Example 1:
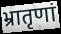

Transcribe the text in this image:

भ्रातृणां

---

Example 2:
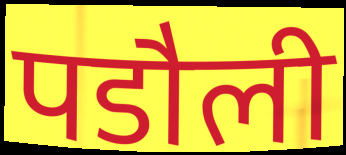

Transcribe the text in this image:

पडौली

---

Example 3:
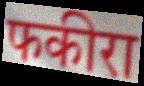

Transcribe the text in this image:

फकीरा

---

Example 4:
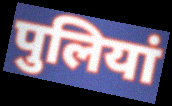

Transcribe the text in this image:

पुलियां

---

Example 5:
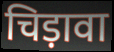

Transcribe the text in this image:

चिड़ावा